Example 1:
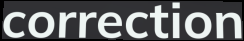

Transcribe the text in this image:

correction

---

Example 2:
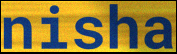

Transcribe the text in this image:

nisha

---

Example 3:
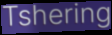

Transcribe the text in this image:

Tshering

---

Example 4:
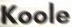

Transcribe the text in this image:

Koole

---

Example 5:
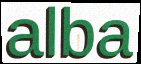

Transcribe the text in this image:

alba